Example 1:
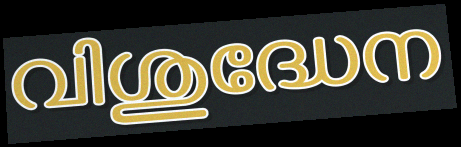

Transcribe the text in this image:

വിശുദ്ധേന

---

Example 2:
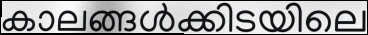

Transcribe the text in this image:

കാലങ്ങൾക്കിടയിലെ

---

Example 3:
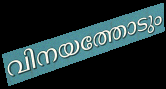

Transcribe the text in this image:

വിനയത്തോടും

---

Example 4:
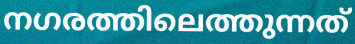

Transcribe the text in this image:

നഗരത്തിലെത്തുന്നത്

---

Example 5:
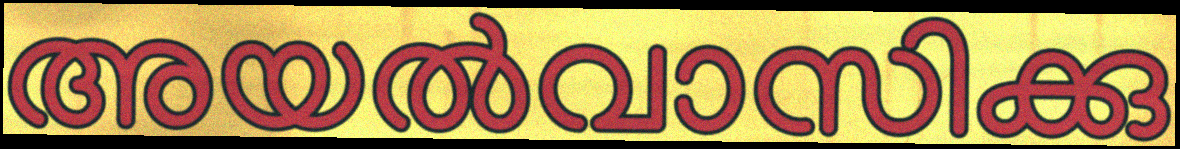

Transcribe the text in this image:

അയൽവാസിക്കു